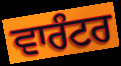
ਵਾਰੰਟਰ